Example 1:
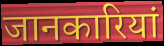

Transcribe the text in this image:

जानकारियां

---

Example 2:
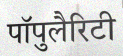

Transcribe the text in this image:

पॉपुलैरिटी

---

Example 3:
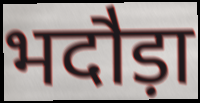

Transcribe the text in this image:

भदौड़ा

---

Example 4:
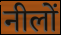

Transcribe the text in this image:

नीलों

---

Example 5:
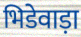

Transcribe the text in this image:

भिडेवाड़ा